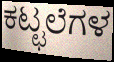
ಕಟ್ಟಲೆಗಳ